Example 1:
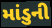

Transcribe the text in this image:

માંડુની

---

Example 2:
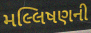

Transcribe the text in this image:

મલ્લિષણની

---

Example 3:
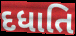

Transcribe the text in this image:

દધાતિ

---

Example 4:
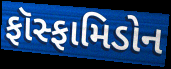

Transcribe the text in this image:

ફૉસ્ફામિડોન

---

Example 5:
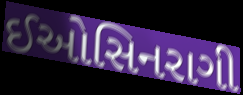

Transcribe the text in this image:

ઈઓસિનરાગી